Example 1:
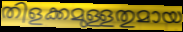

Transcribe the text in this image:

തിളക്കമുള്ളതുമായ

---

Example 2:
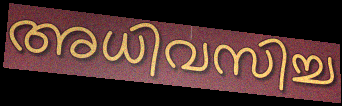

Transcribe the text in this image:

അധിവസിച്ച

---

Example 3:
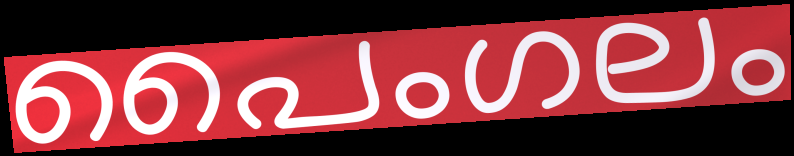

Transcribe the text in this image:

പൈംഗലം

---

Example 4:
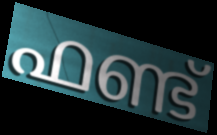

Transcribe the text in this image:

ഫണ്ട്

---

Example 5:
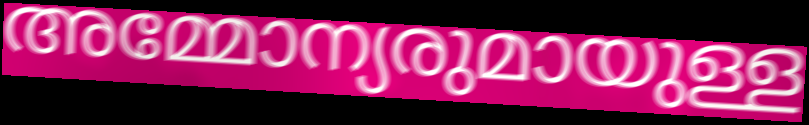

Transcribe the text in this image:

അമ്മോന്യരുമായുള്ള